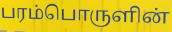
பரம்பொருளின்